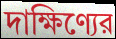
দাক্ষিণ্যের